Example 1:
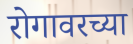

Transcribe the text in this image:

रोगावरच्या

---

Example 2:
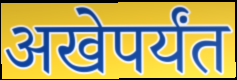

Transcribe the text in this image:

अखेपर्यंत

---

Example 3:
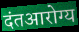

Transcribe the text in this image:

दंतआरोग्य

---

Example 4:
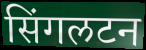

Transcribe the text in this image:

सिंगलटन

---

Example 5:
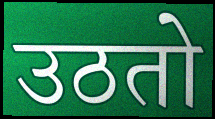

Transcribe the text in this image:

उठतो